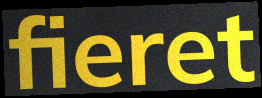
fieret